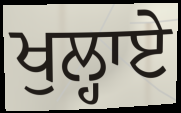
ਖੁਲ੍ਹਾਏ